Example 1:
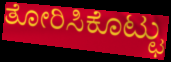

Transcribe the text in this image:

ತೋರಿಸಿಕೊಟ್ಟು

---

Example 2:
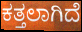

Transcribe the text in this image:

ಕತ್ತಲಾಗಿದೆ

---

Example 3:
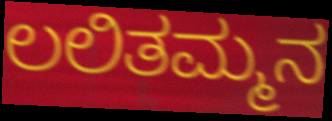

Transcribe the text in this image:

ಲಲಿತಮ್ಮನ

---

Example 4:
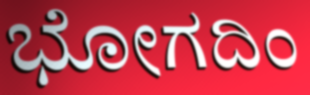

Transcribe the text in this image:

ಭೋಗದಿಂ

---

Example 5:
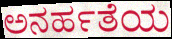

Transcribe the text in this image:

ಅನರ್ಹತೆಯ